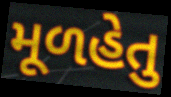
મૂળહેતુ